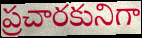
ప్రచారకునిగా